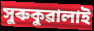
সুৰুকুৱালাই